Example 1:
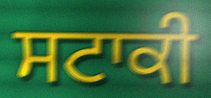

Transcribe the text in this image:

ਸਟਾਕੀ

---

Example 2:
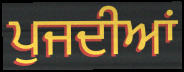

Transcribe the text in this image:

ਪੁਜਦੀਆਂ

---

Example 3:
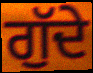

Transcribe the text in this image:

ਗੁੱਦੇ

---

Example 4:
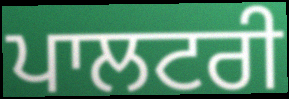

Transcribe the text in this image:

ਪਾਲਟਰੀ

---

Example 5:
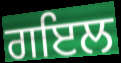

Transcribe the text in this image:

ਗਇਲ